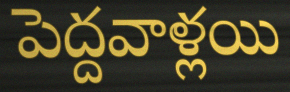
పెద్దవాళ్లయి